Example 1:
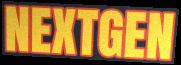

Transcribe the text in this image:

NEXTGEN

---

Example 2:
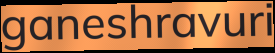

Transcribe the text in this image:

ganeshravuri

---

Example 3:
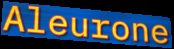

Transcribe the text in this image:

Aleurone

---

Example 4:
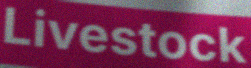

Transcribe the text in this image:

Livestock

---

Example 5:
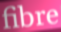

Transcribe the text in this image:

fibre